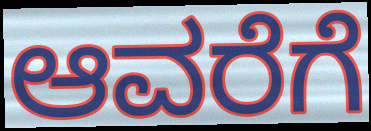
ಆವರೆಗೆ